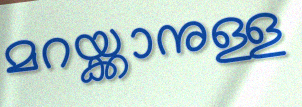
മറയ്ക്കാനുള്ള